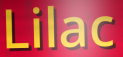
Lilac